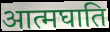
आत्मघाति